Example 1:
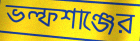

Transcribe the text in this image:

ভল্ফশাঞ্জের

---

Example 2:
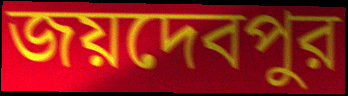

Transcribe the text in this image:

জয়দেবপুর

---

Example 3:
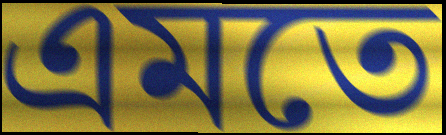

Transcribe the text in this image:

এমতে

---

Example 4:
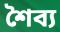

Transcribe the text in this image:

শৈব্য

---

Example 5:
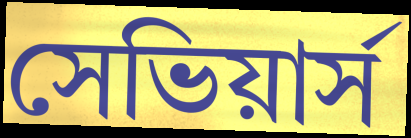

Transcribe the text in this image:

সেভিয়ার্স